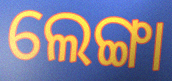
ଲେଙ୍ଗା